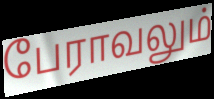
பேராவலும்